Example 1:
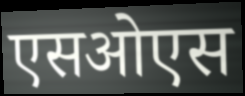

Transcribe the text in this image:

एसओएस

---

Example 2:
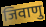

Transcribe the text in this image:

जिवाणु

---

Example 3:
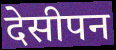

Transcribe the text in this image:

देसीपन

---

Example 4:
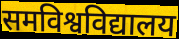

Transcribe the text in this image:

समविश्वविद्यालय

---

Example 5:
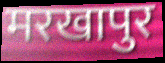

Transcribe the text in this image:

मरखापुर